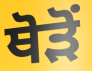
ਥੋੜੋਂ